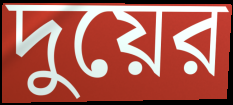
দুয়ের